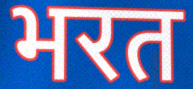
भरत